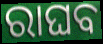
ରାଘବ